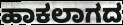
ಹಾಕಲಾಗದ